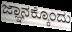
ಜ್ಞಾನಕ್ಕೊಂದು